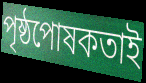
পৃষ্ঠপোষকতাই